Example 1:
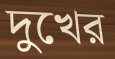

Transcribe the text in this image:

দুখের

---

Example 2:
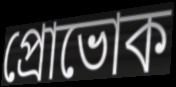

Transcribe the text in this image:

প্রোভোক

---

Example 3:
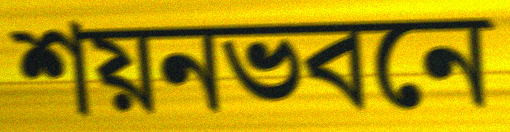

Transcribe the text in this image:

শয়নভবনে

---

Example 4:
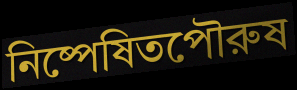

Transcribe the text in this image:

নিষ্পেষিতপৌরুষ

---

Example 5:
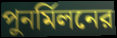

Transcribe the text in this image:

পুনর্মিলনের